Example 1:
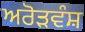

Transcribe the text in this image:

ਅਰੋੜਵੰਸ਼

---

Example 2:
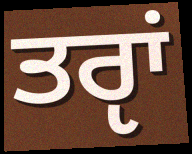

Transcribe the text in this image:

ਤਰੵਾਂ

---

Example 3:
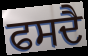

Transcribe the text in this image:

ਫਸਦੈ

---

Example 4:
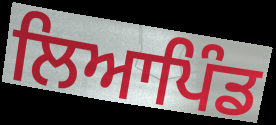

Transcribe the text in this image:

ਲਿਆਪਿੰਡ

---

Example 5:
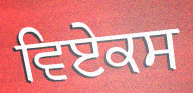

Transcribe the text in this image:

ਵਿਏਕਸ